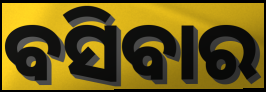
ବସିବାର